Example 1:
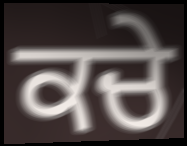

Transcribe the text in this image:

ਕਚੇ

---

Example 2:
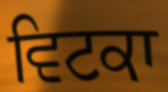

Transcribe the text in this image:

ਵਿਟਕਾ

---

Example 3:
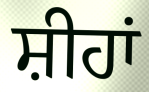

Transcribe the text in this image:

ਸ਼ੀਹਾਂ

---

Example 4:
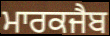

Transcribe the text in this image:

ਮਾਰਕਜੈਬ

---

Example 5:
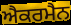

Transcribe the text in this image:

ਐਕਰਮੈਨ